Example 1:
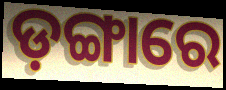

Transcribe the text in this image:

ଡ଼ଙ୍ଗାରେ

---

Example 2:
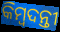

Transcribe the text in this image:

କିମ୍ଵଦନ୍ତୀ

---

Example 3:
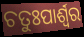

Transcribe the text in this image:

ଚତୁଃପାର୍ଶ୍ଵର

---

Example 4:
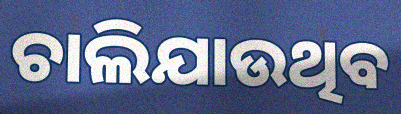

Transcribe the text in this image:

ଚାଲିଯାଉଥିବ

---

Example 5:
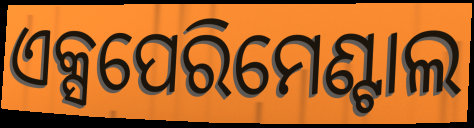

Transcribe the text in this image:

ଏକ୍ସପେରିମେଣ୍ଟାଲ